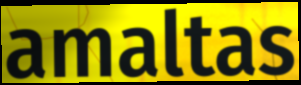
amaltas